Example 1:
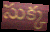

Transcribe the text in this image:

సుక్క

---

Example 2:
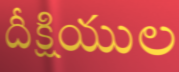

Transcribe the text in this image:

దీక్షియుల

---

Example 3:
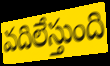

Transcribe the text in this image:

వదిలేస్తుంది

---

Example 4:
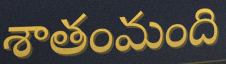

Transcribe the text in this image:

శాతంమంది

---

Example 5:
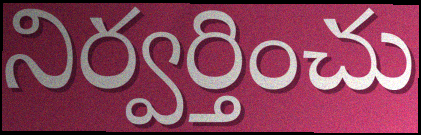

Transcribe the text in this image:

నిర్వర్తించు